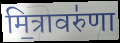
मि॒त्रावरु॑णा